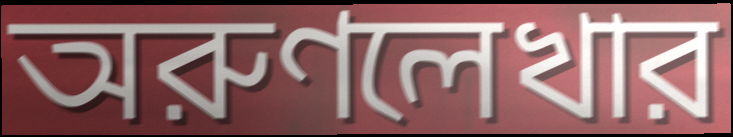
অরুণলেখার